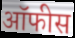
ऑफीस